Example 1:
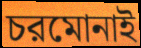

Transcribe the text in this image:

চরমোনাই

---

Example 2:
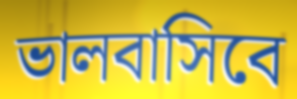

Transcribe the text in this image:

ভালবাসিবে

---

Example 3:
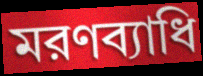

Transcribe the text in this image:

মরণব্যাধি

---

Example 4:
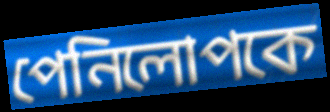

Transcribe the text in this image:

পেনিলোপকে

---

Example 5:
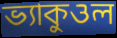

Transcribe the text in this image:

ভ্যাকুওল